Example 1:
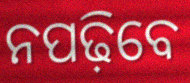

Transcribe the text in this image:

ନପଢ଼ିବେ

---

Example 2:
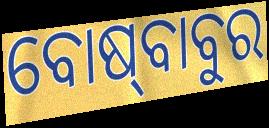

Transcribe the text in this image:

ବୋଷ୍‍ବାବୁର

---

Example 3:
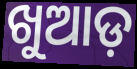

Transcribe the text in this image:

ଖୁଆଡ଼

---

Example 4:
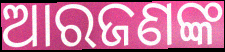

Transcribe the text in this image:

ଆରଜଣଙ୍କ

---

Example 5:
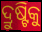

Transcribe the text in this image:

ଦ୍ରୁଷ୍ଟିକୁ